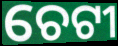
ଚେଟୀ